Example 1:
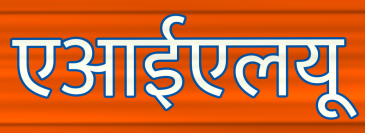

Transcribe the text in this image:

एआईएलयू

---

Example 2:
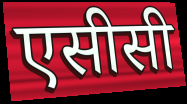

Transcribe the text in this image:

एसीसी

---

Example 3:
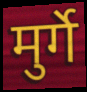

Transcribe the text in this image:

मुर्गे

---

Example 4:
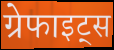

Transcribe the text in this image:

ग्रेफाइट्स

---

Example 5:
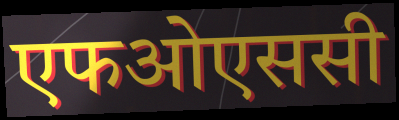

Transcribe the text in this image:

एफओएससी